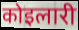
कोइलारी